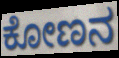
ಕೋಣನ